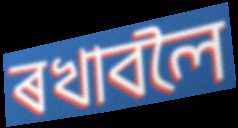
ৰখাবলৈ